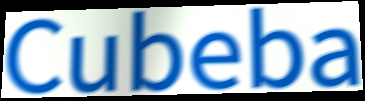
Cubeba